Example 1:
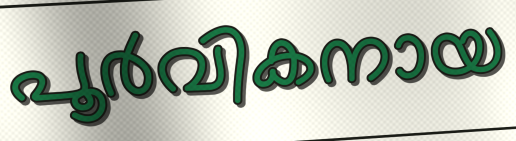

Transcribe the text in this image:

പൂർവികനായ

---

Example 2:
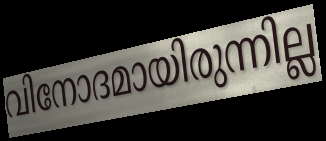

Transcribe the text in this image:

വിനോദമായിരുന്നില്ല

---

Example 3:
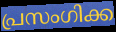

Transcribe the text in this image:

പ്രസംഗിക്ക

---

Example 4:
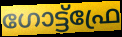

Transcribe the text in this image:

ഗോട്ട്ഫ്രേ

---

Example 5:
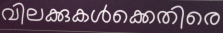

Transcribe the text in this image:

വിലക്കുകൾക്കെതിരെ